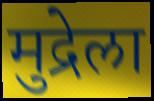
मुद्रेला